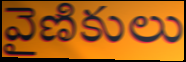
వైణికులు